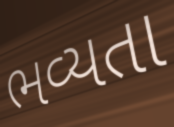
ભવ્યતા